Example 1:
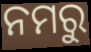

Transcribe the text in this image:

ନମରୁ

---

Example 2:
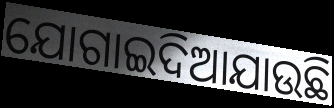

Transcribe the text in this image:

ଯୋଗାଇଦିଆଯାଉଛି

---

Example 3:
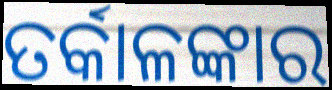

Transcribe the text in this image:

ତର୍କାଳଙ୍କାର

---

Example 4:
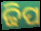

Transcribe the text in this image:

ଢିପ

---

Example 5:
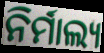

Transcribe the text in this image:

ନିର୍ମାଲ୍ୟ